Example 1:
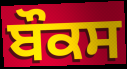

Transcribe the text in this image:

ਬੌਕਸ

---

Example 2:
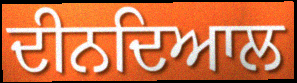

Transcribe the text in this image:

ਦੀਨਦਿਆਲ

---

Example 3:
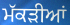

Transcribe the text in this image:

ਮੱਕੜੀਆਂ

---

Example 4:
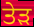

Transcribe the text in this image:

ਤੇੜ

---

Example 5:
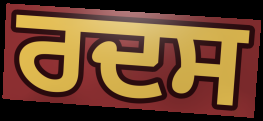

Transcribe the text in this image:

ਰਦਸ